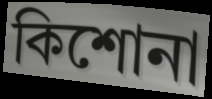
কিশোনা